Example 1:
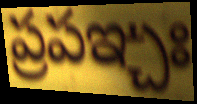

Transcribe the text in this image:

ప్రపఞ్చః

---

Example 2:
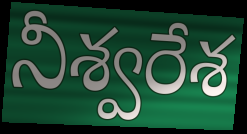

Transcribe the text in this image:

నీశ్వరేశ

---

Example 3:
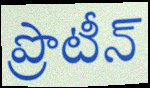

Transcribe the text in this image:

ప్రొటీన్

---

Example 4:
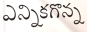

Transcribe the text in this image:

ఎన్నికగొన్న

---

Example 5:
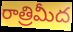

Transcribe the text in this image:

రాత్రిమీద